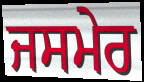
ਜਸਮੇਰ